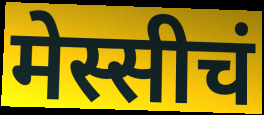
मेस्सीचं